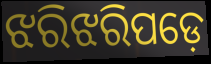
ଝରିଝରିପଡ଼େ